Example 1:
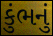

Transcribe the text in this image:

કુંભનું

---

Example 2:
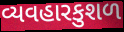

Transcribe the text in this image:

વ્યવહારકુશળ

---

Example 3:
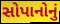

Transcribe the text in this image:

સોપાનોનું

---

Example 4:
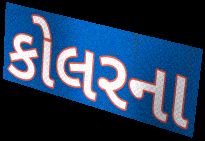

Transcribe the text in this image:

કોલરના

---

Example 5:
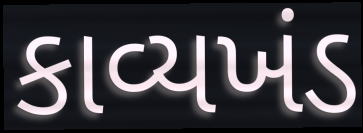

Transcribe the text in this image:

કાવ્યખંડ